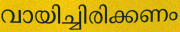
വായിച്ചിരിക്കണം